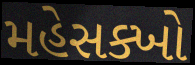
મહેસક્ખો